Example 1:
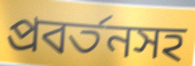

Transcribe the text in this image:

প্রবর্তনসহ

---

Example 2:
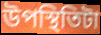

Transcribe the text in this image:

উপস্থিতিটা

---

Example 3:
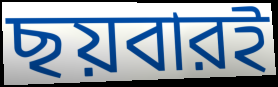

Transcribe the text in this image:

ছয়বারই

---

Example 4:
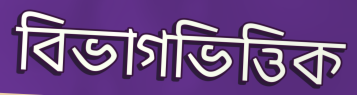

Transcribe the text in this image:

বিভাগভিত্তিক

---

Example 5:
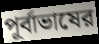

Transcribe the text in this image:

পূর্বাভাষের